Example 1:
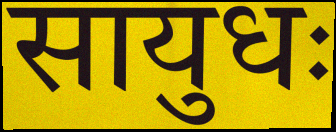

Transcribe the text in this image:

सायुधः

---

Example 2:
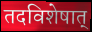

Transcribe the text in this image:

तदविशेषात्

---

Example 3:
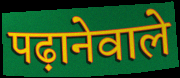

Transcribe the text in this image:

पढ़ानेवाले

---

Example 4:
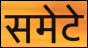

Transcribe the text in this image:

समेटे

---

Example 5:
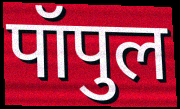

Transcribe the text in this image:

पॉपुल